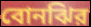
বোনঝির